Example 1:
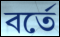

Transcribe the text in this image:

বর্তে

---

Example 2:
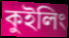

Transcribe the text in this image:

কুইলিং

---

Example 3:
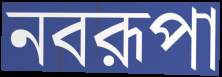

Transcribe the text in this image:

নবরূপা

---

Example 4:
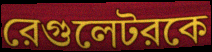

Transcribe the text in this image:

রেগুলেটরকে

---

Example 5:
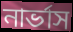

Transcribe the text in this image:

নার্ভাস